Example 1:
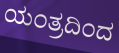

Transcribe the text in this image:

ಯಂತ್ರದಿಂದ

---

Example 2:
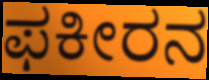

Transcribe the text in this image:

ಫಕೀರನ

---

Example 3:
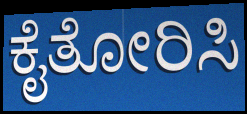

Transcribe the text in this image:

ಕೈತೋರಿಸಿ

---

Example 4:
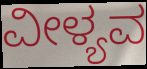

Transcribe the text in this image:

ವೀಳ್ಯವ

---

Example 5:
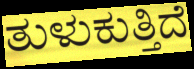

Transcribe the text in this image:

ತುಳುಕುತ್ತಿದೆ